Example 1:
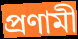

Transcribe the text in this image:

প্রণামী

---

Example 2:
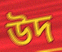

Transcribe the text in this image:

উদ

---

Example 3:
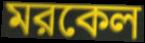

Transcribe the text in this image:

মরকেল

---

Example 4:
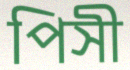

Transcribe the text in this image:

পিসী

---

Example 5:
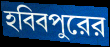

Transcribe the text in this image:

হবিবপুরের